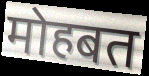
मोहबत